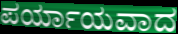
ಪರ್ಯಾಯವಾದ